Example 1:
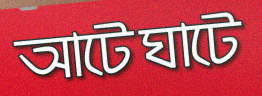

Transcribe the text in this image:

আটেঘাটে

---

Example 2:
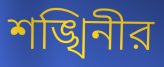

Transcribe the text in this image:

শঙ্খিনীর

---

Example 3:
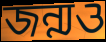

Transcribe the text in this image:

জন্মও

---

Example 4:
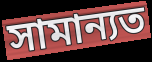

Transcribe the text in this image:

সামান্যত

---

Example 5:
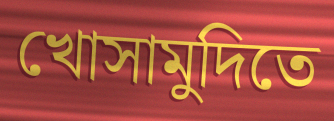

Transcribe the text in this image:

খোসামুদিতে